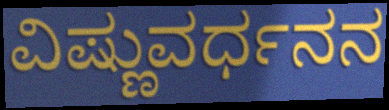
ವಿಷ್ಣುವರ್ಧನನ